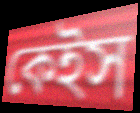
কেইস